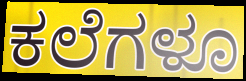
ಕಲೆಗಳೂ